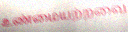
உண்மையற்றவை